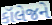
કૉલેજને